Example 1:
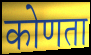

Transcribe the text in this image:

कोणता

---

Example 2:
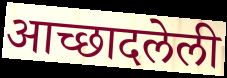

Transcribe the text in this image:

आच्छादलेली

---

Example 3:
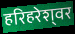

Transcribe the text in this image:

हरिहरेश्वर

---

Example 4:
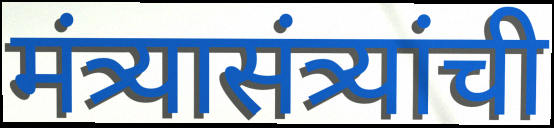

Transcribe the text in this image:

मंत्र्यासंत्र्यांची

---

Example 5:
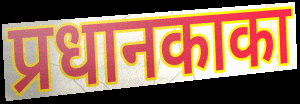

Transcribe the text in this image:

प्रधानकाका